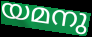
യമനു